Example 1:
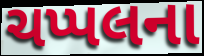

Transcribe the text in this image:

ચપ્પલના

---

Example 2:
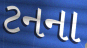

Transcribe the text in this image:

ટનના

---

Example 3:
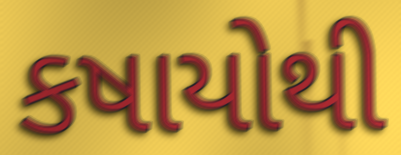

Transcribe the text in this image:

કષાયોથી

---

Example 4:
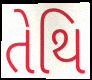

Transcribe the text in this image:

તેથિ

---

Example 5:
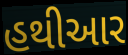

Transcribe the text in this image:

હથીઆર